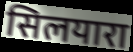
सिलयारा